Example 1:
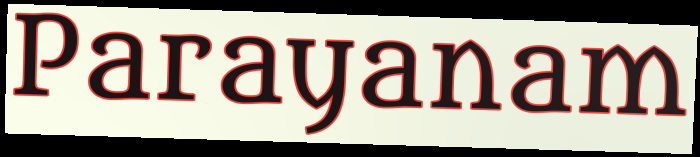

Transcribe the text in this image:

Parayanam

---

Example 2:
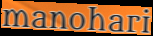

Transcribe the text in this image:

manohari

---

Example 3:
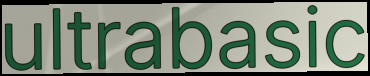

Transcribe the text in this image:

ultrabasic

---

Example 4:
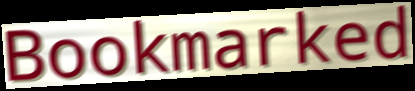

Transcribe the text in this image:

Bookmarked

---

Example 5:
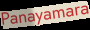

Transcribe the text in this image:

Panayamara